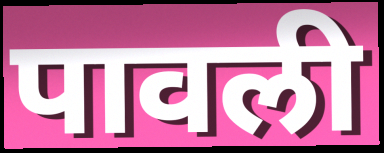
पावली